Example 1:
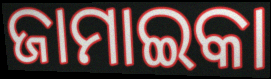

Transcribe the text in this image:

ଜାମାଇକା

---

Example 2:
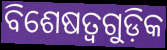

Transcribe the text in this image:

ବିଶେଷତ୍ୱଗୁଡ଼ିକ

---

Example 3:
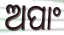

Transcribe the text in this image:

ଅପାଂ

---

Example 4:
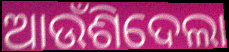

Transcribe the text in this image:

ଆଉଁଶିଦେଲା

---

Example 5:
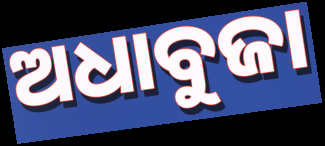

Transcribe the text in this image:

ଅଧାବୁଜା